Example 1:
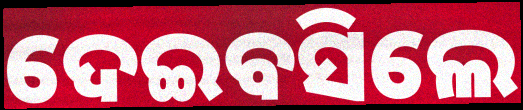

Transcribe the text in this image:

ଦେଇବସିଲେ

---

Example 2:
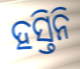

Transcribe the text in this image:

ହସ୍ତିନି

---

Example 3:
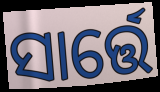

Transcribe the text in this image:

ସାର୍ତ୍ତେ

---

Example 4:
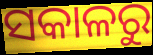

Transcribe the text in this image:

ସକାଳରୁ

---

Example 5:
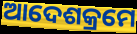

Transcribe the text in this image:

ଆଦେଶକ୍ରମେ